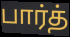
பார்த்